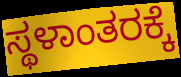
ಸ್ಥಳಾಂತರಕ್ಕೆ